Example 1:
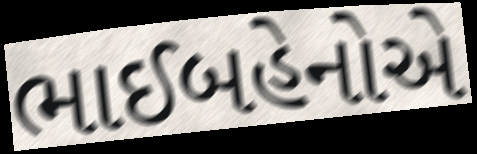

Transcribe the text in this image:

ભાઈબહેનોએ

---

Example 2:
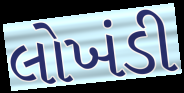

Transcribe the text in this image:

લોખંડી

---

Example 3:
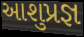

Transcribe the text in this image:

આશુપ્રજ્ઞ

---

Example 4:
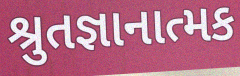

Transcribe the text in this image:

શ્રુતજ્ઞાનાત્મક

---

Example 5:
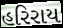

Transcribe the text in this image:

હરિરાય